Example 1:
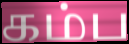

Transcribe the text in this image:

கம்ப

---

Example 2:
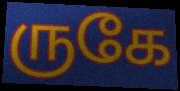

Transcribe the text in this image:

ருகே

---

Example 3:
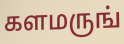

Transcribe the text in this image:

களமருங்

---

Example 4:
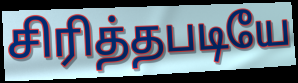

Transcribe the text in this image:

சிரித்தபடியே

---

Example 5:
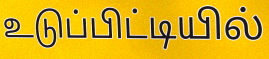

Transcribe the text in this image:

உடுப்பிட்டியில்